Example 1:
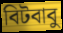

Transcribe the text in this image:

বিটবাবু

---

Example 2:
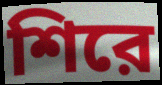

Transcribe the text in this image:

শিরে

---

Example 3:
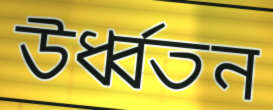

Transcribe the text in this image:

উর্ধ্বতন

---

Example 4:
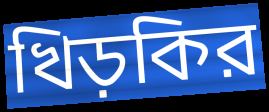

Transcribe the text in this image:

খিড়কির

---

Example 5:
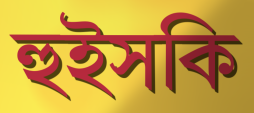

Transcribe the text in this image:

হুইসকি